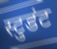
स्टुडंट